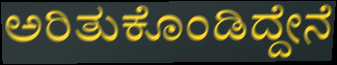
ಅರಿತುಕೊಂಡಿದ್ದೇನೆ